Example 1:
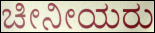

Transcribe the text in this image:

ಚೀನೀಯರು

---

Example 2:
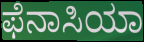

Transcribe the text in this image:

ಫೆನಾಸಿಯಾ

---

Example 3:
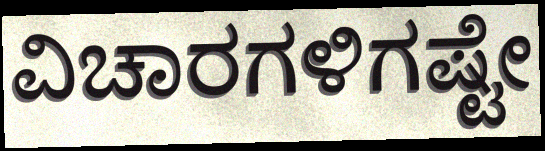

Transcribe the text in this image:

ವಿಚಾರಗಳಿಗಷ್ಟೇ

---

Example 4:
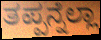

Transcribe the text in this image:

ತಪ್ಪನ್ನೆಲ್ಲಾ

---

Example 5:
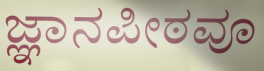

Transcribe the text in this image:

ಜ್ಞಾನಪೀಠವೂ